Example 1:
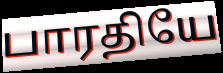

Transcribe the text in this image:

பாரதியே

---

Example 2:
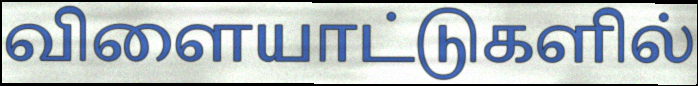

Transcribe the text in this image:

விளையாட்டுகளில்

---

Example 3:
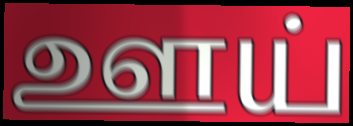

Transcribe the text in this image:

ஊய்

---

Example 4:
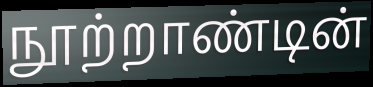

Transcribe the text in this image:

நூற்றாண்டின்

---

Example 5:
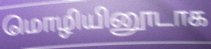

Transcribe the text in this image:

மொழியினூடாக